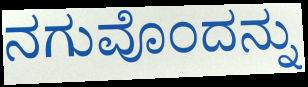
ನಗುವೊಂದನ್ನು